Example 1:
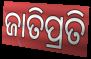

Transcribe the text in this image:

ଜାତିପ୍ରତି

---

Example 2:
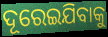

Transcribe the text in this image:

ଦୂରେଇଯିବାକୁ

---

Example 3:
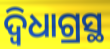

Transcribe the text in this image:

ଦ୍ବିଧାଗ୍ରସ୍ଥ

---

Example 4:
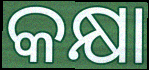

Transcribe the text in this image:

କକ୍ଷା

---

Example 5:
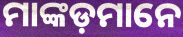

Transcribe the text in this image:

ମାଙ୍କଡ଼ମାନେ